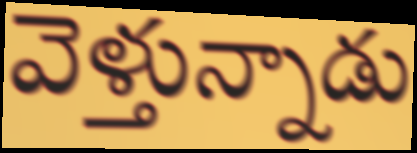
వెళ్తున్నాడు